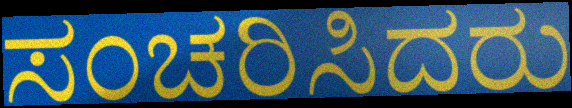
ಸಂಚರಿಸಿದರು